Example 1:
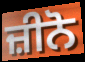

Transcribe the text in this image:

ਜ਼ੀਨੋ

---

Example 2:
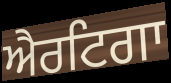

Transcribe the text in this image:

ਐਰਟਿਗਾ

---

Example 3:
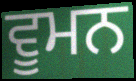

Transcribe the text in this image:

ਵੂਮਨ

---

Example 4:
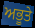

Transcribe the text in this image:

ਅਭੂਤੇ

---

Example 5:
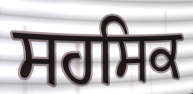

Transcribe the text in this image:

ਸਹਸਿਕ